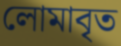
লোমাবৃত